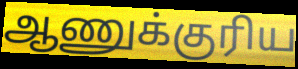
ஆணுக்குரிய